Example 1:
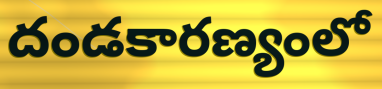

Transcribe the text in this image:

దండకారణ్యంలో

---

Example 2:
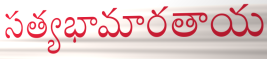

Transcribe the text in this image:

సత్యభామారతాయ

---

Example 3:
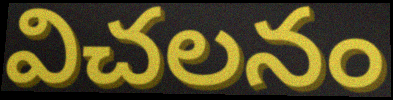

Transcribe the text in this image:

విచలనం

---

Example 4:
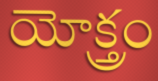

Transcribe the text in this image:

యోక్త్రం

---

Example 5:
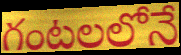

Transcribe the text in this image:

గంటలలోనే